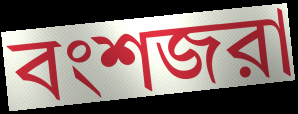
বংশজরা